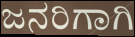
ಜನರಿಗಾಗಿ